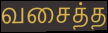
வசைத்த